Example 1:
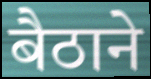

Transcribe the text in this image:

बैठाने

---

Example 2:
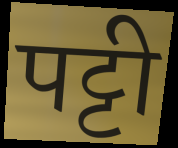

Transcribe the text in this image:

पट्टी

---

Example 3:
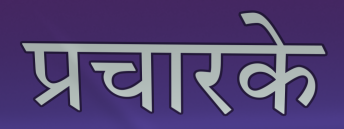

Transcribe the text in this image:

प्रचारके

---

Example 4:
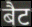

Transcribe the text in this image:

बैट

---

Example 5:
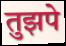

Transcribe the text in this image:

तुझपे